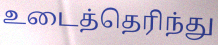
உடைத்தெரிந்து